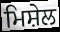
ਮਿਸ਼ੇਲ